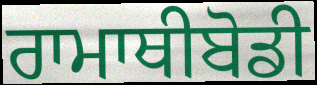
ਰਾਮਾਥੀਬੋਡੀ